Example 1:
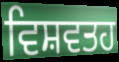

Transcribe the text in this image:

ਵਿਸ਼ਵਤਹ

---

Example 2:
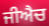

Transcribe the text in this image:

ਜੀਐਚ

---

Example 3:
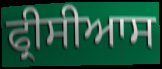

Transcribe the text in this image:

ਫ੍ਰੀਸੀਆਸ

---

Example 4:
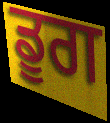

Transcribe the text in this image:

ਡੂਗ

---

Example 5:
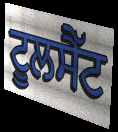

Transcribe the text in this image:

ਟੂਲਸੈੱਟ